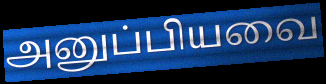
அனுப்பியவை